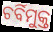
ଚର୍ବିମୁକ୍ତ